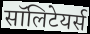
सॉलिटेयर्स